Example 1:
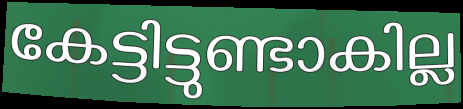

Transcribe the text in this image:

കേട്ടിട്ടുണ്ടാകില്ല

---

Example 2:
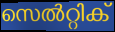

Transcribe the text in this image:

സെൽറ്റിക്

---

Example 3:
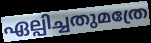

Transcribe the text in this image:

ഏല്പിച്ചതുമത്രേ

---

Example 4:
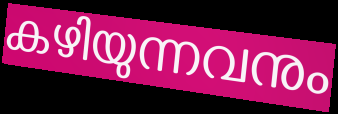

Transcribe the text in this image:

കഴിയുന്നവനും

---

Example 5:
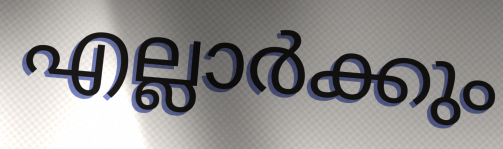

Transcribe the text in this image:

എല്ലാർക്കും